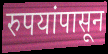
रुपयांपासून